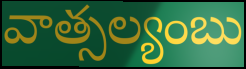
వాత్సల్యంబు